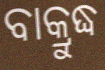
ବାକ୍ରୁଦ୍ଧ